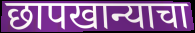
छापखान्याचा